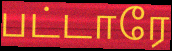
பட்டாரே